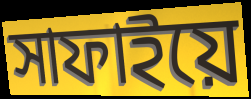
সাফাইয়ে